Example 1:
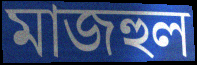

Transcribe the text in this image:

মাজহুল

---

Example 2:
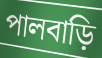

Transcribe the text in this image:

পালবাড়ি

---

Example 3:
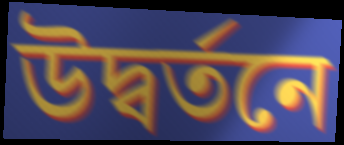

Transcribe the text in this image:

উদ্বর্তনে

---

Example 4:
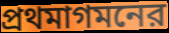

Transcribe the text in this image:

প্রথমাগমনের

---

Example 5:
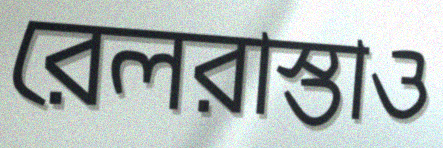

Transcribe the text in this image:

রেলরাস্তাও